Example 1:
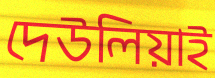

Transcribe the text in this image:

দেউলিয়াই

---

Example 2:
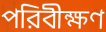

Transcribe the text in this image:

পরিবীক্ষণ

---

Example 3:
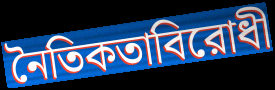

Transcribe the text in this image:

নৈতিকতাবিরোধী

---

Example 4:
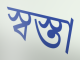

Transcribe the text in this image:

স্বস্তা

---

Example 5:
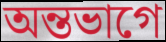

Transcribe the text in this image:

অন্তভাগে